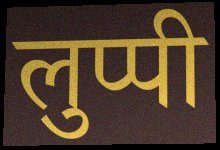
लुप्पी